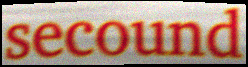
secound